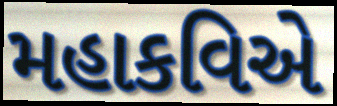
મહાકવિએ